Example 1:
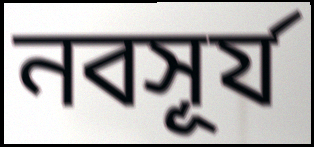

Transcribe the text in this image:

নবসূর্য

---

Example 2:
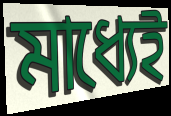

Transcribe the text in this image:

মাধ্যেই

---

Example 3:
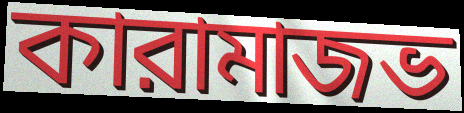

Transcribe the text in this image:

কারামাজভ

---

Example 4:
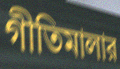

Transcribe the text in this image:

গীতিমালার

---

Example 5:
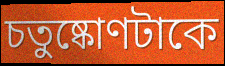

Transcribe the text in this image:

চতুষ্কোণটাকে